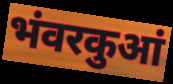
भंवरकुआं